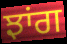
ਝਾਂਗ